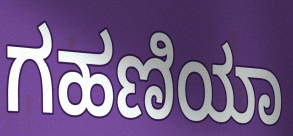
ಗಹಣಿಯಾ